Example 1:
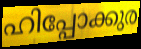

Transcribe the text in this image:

ഹിപ്പോക്കുര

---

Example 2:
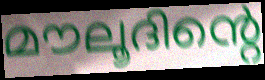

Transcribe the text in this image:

മൗലൂദിന്റെ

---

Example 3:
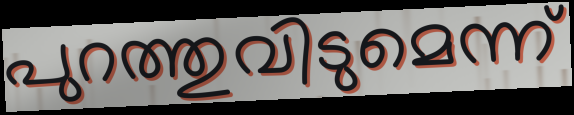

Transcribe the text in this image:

പുറത്തുവിടുമെന്ന്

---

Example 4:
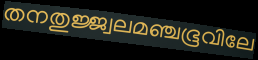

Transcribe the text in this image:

തനതുജ്ജ്വലമഞ്ചഭൂവിലേ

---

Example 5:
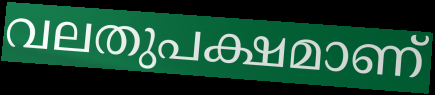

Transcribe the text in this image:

വലതുപക്ഷമാണ്